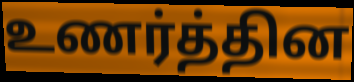
உணர்த்தின